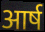
आर्ष